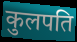
कुलपति